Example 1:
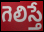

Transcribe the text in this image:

గెలిస్తే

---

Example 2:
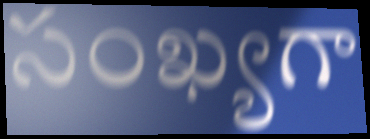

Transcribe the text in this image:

సంఖ్యగా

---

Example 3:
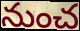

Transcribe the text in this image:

నుంచ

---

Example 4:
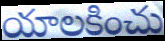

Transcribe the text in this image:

యాలకించు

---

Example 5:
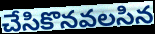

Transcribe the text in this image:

చేసికొనవలసిన